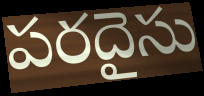
పరదైసు